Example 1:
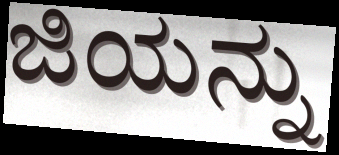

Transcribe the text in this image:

ಜಿಯನ್ನು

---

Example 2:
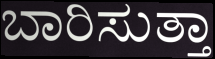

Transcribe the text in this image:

ಬಾರಿಸುತ್ತಾ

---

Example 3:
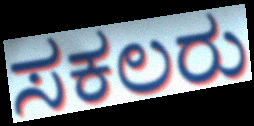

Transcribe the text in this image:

ಸಕಲರು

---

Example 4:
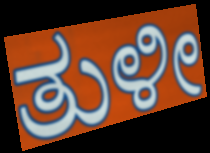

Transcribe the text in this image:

ತುಳೀ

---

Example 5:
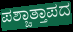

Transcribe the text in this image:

ಪಶ್ಚಾತ್ತಾಪದ